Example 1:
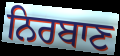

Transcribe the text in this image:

ਨਿਰਬਾਣ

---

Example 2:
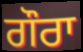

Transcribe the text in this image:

ਗੌਰਾ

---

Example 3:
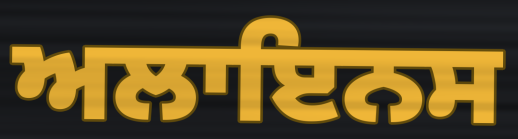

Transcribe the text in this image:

ਅਲਾਇਨਸ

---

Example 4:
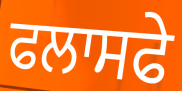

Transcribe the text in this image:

ਫਲਾਸਫੇ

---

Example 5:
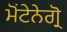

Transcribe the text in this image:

ਮੋਂਟੇਨੇਗ੍ਰੋ